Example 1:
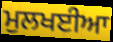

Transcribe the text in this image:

ਮੁਲਖਈਆ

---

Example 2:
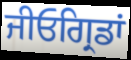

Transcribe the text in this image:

ਜੀਓਗ੍ਰਿਡਾਂ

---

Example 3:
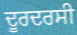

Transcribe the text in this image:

ਦੂਰਦਰਸੀ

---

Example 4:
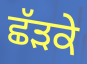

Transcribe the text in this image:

ਛੱੜਕੇ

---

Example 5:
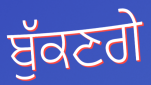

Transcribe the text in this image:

ਬੁੱਕਣਗੇ